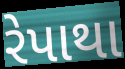
રેપાથા